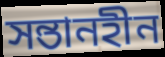
সন্তানহীন